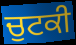
ਚੁਟਕੀ